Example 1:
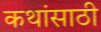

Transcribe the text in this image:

कथांसाठी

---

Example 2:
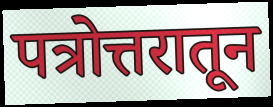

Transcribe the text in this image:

पत्रोत्तरातून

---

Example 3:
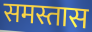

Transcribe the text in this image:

समस्तास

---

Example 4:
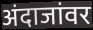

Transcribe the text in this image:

अंदाजांवर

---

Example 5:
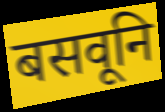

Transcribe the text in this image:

बसवूनि